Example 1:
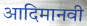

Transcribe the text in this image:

आदिमानवी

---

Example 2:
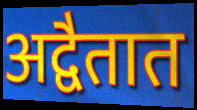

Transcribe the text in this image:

अद्वैतात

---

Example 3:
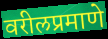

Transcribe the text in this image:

वरीलप्रमाणे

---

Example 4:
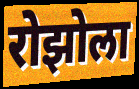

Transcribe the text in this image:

रोझोला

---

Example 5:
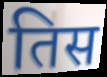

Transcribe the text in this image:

तिस